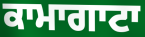
ਕਾਮਾਗਾਟਾ